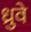
ध्रुवे